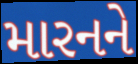
મારનને